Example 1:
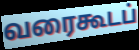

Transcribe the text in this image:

வரைகூடப்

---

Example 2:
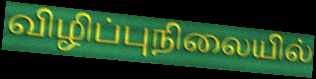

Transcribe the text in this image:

விழிப்புநிலையில்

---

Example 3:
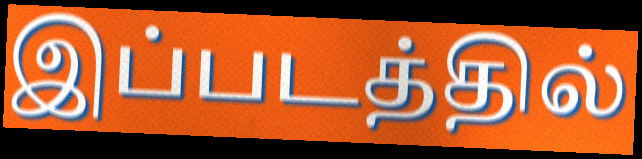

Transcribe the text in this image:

இப்படத்தில்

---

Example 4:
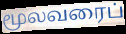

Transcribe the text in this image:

மூலவரைப்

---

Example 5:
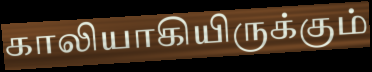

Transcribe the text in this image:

காலியாகியிருக்கும்